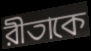
রীতাকে